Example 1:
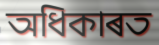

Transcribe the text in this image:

অধিকাৰত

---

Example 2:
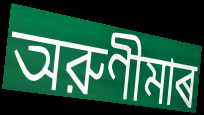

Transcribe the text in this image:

অৰুণীমাৰ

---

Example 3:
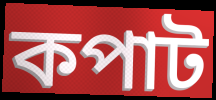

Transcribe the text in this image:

কপাট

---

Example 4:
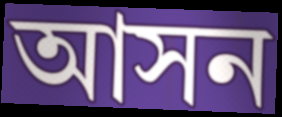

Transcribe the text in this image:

আসন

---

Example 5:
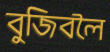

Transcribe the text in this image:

বুজিবলৈ